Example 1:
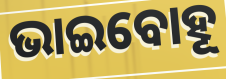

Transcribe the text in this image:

ଭାଇବୋହୂ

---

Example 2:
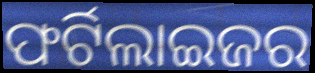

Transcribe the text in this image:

ଫର୍ଟିଲାଇଜର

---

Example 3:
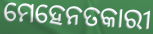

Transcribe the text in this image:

ମେହେନତକାରୀ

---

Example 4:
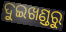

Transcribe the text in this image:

ଦୁଇଖଣ୍ଡରୁ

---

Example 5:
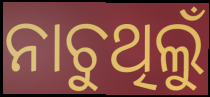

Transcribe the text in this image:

ନାଚୁଥିଲୁଁ